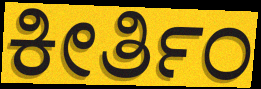
ಕೀರ್ತಿಂ